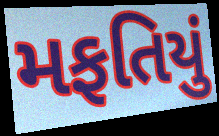
મફતિયું